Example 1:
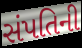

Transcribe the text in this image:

સંપતિની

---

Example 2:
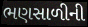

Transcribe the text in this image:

ભણસાળીની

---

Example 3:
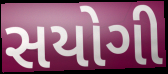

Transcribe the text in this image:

સયોગી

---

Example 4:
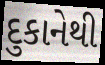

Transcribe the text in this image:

દુકાનેથી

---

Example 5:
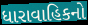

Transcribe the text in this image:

ધારાવાહિકનો